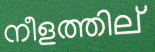
നീളത്തില്